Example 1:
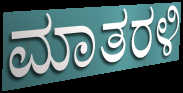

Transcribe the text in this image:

ಮಾತರಳಿ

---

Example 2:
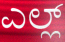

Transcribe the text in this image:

ಎಲ್ಲ್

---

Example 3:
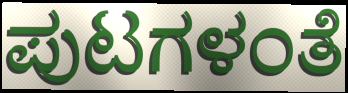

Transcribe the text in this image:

ಪುಟಗಳಂತೆ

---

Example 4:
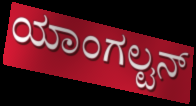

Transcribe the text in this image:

ಯಾಂಗಲ್ಟನ್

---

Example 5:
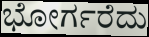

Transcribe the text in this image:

ಭೋರ್ಗರೆದು